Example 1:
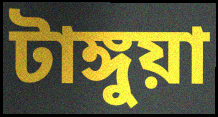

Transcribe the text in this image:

টাঙ্গুয়া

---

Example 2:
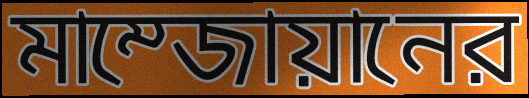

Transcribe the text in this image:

মাম্জোয়ানের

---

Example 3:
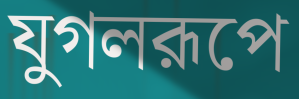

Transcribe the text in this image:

যুগলরূপে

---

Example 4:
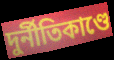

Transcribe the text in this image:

দুর্নীতিকাণ্ডে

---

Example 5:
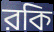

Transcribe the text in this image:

রকি